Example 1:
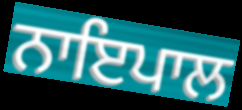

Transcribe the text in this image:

ਨਾਇਪਾਲ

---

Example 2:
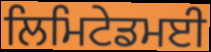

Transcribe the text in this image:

ਲਿਮਿਟੇਡਮਈ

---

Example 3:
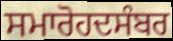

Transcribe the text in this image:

ਸਮਾਰੋਹਦਸੰਬਰ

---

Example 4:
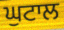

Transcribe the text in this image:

ਘੁਟਾਲ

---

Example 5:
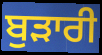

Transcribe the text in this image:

ਬੁੜਾਰੀ